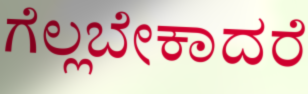
ಗೆಲ್ಲಬೇಕಾದರೆ